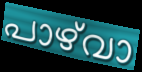
പാഴ്‌വാ